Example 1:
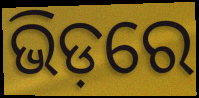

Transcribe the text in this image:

ଭିଡ଼ରେ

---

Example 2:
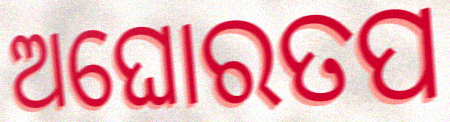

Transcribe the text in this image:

ଅଘୋରତପ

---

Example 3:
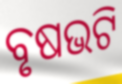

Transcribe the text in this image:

ବୃଷଭଟି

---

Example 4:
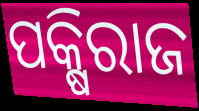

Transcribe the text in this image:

ପକ୍ଷିରାଜ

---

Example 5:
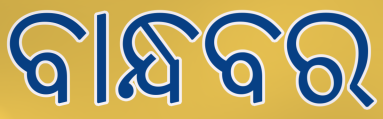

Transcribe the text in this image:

ବାନ୍ଧବର